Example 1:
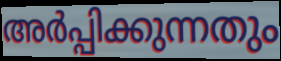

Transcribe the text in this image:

അർപ്പിക്കുന്നതും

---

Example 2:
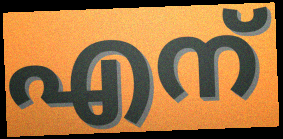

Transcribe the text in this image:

എന്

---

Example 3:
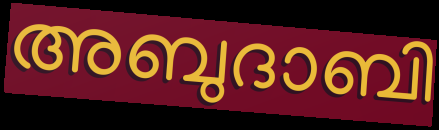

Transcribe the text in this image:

അബുദാബി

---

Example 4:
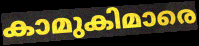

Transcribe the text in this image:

കാമുകിമാരെ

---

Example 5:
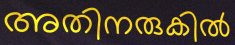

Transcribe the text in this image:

അതിനരുകിൽ